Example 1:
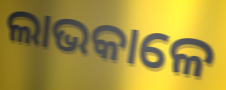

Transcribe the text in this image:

ଲାଭକାଳେ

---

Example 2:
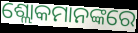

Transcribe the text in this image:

ଶ୍ଲୋକମାନଙ୍କରେ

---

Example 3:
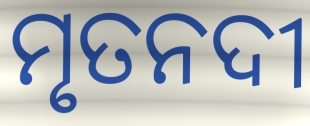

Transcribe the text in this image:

ମୃତନଦୀ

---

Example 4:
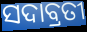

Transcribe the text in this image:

ସଦାବ୍ରତୀ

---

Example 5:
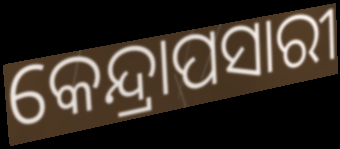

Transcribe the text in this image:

କେନ୍ଦ୍ରାପସାରୀ